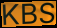
KBS